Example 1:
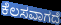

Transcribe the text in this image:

ಕೆಲಸವಾಗದೆ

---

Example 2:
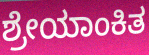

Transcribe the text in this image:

ಶ್ರೇಯಾಂಕಿತ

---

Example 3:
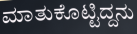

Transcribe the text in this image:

ಮಾತುಕೊಟ್ಟಿದ್ದನು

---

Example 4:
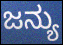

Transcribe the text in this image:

ಜನ್ಯು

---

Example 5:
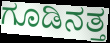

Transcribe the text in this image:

ಗೂಡಿನತ್ತ